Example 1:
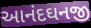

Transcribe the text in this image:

આનંદઘનજી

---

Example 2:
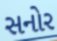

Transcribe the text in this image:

સનોર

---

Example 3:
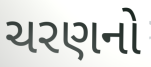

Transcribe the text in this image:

ચરણનો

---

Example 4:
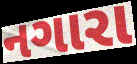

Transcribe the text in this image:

નગારા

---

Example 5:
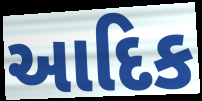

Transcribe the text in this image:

આદિક